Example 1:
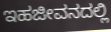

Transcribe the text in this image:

ಇಹಜೀವನದಲ್ಲಿ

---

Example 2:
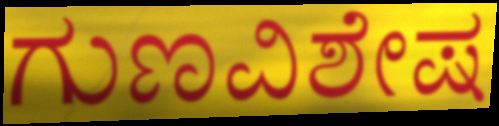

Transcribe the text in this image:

ಗುಣವಿಶೇಷ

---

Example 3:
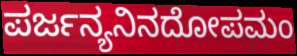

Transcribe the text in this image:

ಪರ್ಜನ್ಯನಿನದೋಪಮಂ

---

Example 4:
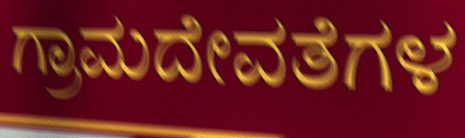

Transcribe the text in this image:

ಗ್ರಾಮದೇವತೆಗಳ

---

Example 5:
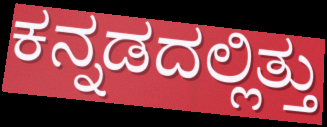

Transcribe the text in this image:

ಕನ್ನಡದಲ್ಲಿತ್ತು